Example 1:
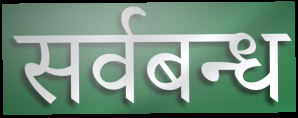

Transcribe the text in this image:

सर्वबन्ध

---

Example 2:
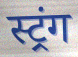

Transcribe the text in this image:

स्ट्रंग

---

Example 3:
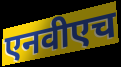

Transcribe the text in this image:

एनवीएच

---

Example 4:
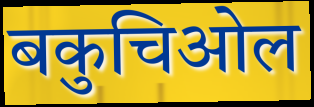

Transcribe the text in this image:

बकुचिओल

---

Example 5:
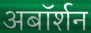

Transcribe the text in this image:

अबॉर्शन